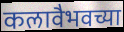
कलावैभवच्या